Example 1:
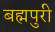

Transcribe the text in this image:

बह्मपुरी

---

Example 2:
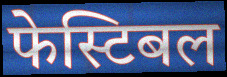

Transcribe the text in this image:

फेस्टिबल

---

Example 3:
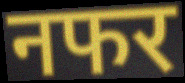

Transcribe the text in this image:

नफर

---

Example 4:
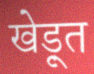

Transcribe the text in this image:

खेड़ूत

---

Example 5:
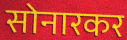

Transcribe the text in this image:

सोनारकर